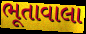
ભૂતાવાલા